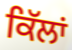
ਕਿੱਲਾਂ